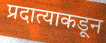
प्रदात्याकडून